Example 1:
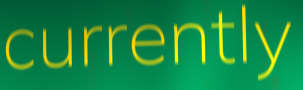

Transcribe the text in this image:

currently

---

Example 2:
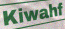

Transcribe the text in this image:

Kiwahf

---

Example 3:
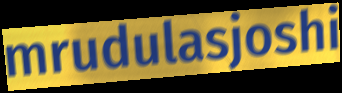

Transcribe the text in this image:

mrudulasjoshi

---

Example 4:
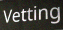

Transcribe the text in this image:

Vetting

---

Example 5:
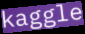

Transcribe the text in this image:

kaggle